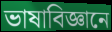
ভাষাবিজ্ঞানে